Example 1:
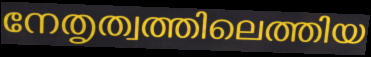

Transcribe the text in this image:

നേതൃത്വത്തിലെത്തിയ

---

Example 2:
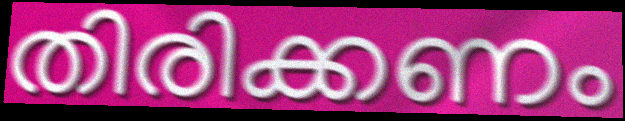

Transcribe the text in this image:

തിരിക്കണം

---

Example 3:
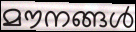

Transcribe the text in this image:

മൗനങ്ങൾ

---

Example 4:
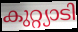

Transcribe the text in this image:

കുറ്റ്യാടി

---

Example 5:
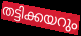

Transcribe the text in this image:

തട്ടിക്കയറും